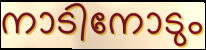
നാടിനോടും